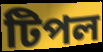
টিপল